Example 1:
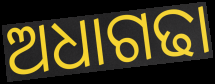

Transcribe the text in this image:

ଅଧାଗଢା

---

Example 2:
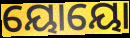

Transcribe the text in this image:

ୟୋୟୋ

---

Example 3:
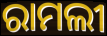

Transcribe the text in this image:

ରାମଲୀ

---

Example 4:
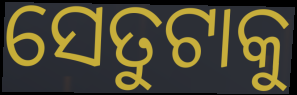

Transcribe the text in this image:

ସେତୁଟାକୁ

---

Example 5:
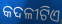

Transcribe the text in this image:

କଦଳୀଟିଏ